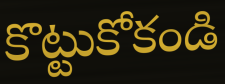
కొట్టుకోకండి